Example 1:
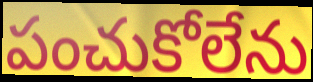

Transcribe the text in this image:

పంచుకోలేను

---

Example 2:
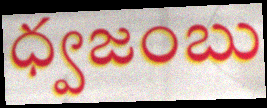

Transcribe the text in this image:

ధ్వజంబు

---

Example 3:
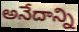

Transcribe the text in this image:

అనేదాన్ని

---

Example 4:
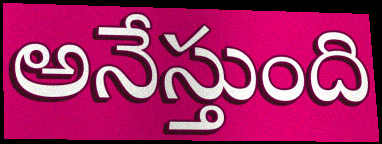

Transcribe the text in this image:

అనేస్తుంది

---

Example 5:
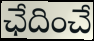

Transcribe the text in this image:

ఛేదించే